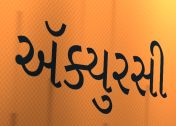
ઍક્યુરસી